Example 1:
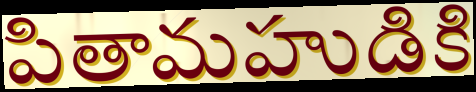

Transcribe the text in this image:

పితామహుడికి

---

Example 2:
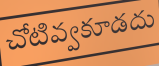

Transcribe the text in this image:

చోటివ్వకూడదు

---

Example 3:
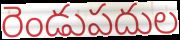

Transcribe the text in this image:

రెండుపదుల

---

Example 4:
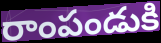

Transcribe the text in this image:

రాంపండుకి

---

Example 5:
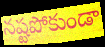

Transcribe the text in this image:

నష్టపోకుండా